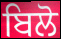
ਬਿਲੋ